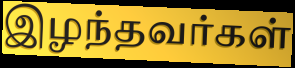
இழந்தவர்கள்